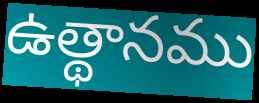
ఉత్థానము